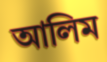
আলিম